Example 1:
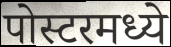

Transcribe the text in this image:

पोस्टरमध्ये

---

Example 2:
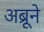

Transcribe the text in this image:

अब्रूने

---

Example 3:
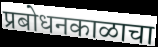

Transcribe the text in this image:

प्रबोधनकाळाचा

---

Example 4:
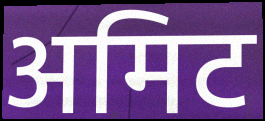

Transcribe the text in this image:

अमिट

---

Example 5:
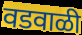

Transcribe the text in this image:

वडवाळी